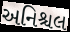
અનિશ્ચલ